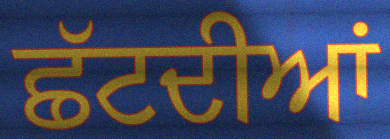
ਛੱਟਦੀਆਂ